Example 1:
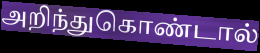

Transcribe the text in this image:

அறிந்துகொண்டால்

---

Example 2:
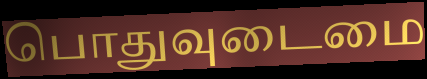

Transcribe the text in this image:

பொதுவுடைமை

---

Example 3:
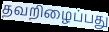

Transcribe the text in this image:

தவறிழைப்பது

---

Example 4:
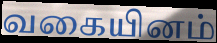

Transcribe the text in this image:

வகையினம்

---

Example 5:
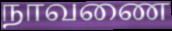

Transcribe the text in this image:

நாவணை